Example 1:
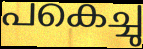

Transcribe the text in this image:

പകെച്ചു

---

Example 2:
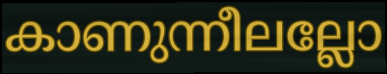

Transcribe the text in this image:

കാണുന്നീലല്ലോ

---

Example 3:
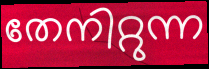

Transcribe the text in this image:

തേനിറ്റുന്ന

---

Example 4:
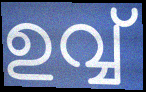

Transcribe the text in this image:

ഉവ്വ്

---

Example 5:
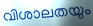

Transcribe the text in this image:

വിശാലതയും